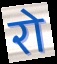
रो